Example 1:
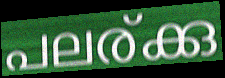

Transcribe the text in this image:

പലര്ക്കു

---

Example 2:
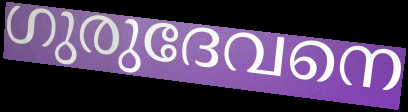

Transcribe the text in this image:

ഗുരുദേവനെ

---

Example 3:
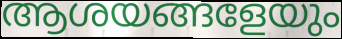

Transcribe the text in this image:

ആശയങ്ങളേയും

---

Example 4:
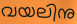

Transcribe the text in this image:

വയലിനു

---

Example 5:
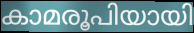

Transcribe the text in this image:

കാമരൂപിയായി